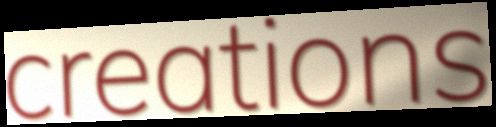
creations